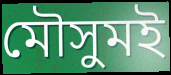
মৌসুমই